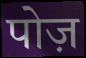
पोज़